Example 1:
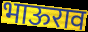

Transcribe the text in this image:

भाऊराव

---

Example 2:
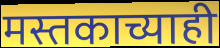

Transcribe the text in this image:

मस्तकाच्याही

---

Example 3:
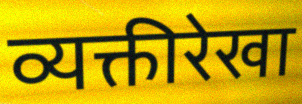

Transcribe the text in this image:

व्यक्तीरेखा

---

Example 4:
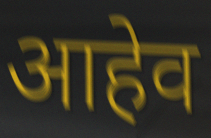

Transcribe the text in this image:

आहेव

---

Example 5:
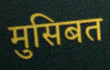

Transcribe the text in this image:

मुसिबत